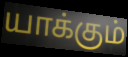
யாக்கும்